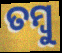
ତମ୍ବୁ